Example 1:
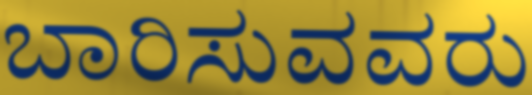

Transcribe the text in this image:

ಬಾರಿಸುವವರು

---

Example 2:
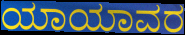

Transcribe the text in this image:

ಯಾಯಾವರ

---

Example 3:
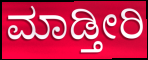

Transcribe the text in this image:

ಮಾಡ್ತೀರಿ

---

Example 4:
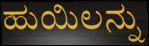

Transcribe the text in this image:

ಹುಯಿಲನ್ನು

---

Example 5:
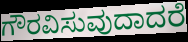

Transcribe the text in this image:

ಗೌರವಿಸುವುದಾದರೆ